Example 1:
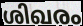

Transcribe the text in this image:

ശിഖരം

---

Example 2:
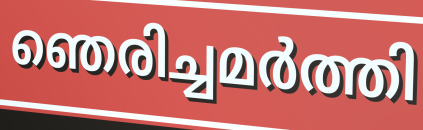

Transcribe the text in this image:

ഞെരിച്ചമർത്തി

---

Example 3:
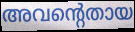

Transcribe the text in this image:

അവന്റെതായ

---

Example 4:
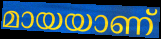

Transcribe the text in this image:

മായയാണ്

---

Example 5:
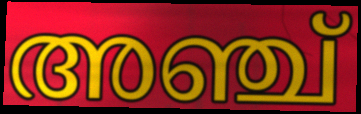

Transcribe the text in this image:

അഞ്ച്